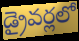
డ్రైవర్లలో